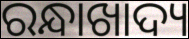
ରନ୍ଧାଖାଦ୍ୟ